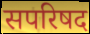
सपरिषद